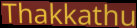
Thakkathu